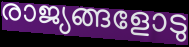
രാജ്യങ്ങളോടു